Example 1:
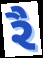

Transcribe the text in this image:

રૈ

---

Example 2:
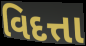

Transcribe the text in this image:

વિદત્તા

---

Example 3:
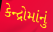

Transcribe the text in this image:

કેન્દ્રોમાંનું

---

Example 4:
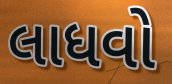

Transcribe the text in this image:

લાધવો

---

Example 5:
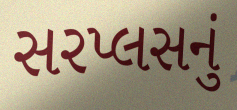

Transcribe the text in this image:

સરપ્લસનું